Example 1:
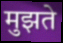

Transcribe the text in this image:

मुझते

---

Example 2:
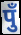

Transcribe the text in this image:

पुँ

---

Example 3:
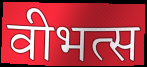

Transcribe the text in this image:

वीभत्स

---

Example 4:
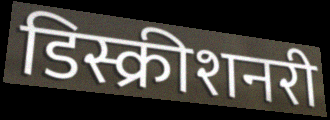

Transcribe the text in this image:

डिस्क्रीशनरी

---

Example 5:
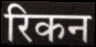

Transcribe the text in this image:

रिकन